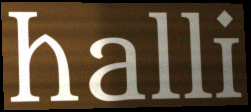
halli